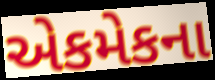
એકમેકના